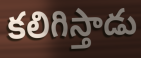
కలిగిస్తాడు